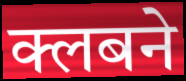
क्‍लबने